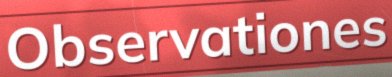
Observationes